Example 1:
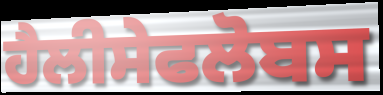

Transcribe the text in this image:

ਹੈਲੀਸੇਫਲੋਬਸ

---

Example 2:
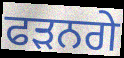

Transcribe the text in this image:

ਫੜਨਗੇ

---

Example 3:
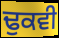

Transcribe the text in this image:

ਢੁਕਵੀ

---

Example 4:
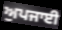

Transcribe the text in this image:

ਅੁਪਜਾਈ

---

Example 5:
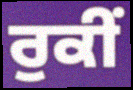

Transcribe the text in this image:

ਰੁਕੀਂ